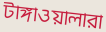
টাঙ্গাওয়ালারা